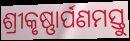
ଶ୍ରୀକୃଷ୍ଣାର୍ପଣମସ୍ତୁ